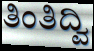
ತಿಂತಿದ್ವಿ